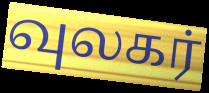
வுலகர்